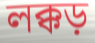
লক্কড়